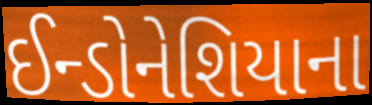
ઈન્ડોનેશિયાના